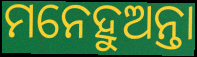
ମନେହୁଅନ୍ତା